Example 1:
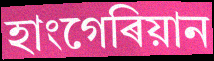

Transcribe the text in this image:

হাংগেৰিয়ান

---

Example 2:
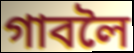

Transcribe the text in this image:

গাবলৈ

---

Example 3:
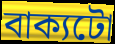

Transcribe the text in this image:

বাক্যটো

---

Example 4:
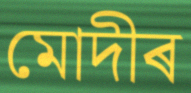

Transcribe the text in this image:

মোদীৰ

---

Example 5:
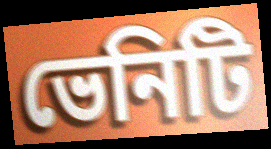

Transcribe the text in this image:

ভেনিটি